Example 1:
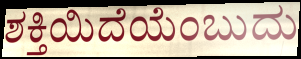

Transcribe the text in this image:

ಶಕ್ತಿಯಿದೆಯೆಂಬುದು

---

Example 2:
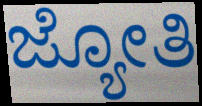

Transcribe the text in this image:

ಜ್ಯೋತಿ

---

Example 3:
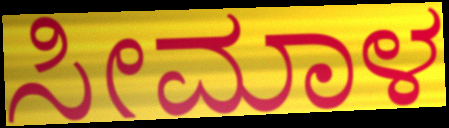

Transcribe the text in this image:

ಸೀಮಾಳ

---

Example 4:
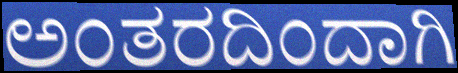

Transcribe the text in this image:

ಅಂತರದಿಂದಾಗಿ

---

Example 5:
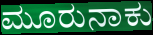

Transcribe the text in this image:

ಮೂರುನಾಕು